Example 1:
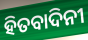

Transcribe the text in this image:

ହିତବାଦିନୀ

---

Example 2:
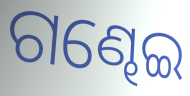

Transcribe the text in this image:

ଗଣ୍ଢେଇ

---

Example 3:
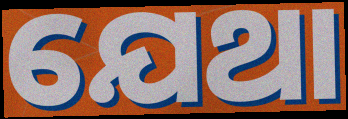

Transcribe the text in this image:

ଯେଥା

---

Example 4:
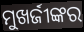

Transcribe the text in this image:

ମୁଖର୍ଜୀଙ୍କର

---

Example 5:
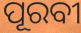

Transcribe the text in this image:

ପୂରବୀ